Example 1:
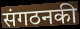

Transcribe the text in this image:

संगठनकी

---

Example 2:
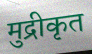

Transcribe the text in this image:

मुद्रीकृत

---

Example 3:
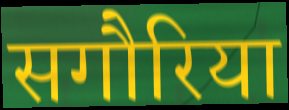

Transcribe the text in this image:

सगौरिया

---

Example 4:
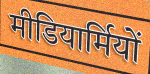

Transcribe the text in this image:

मीडियार्मियों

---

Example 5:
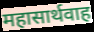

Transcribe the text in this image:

महासार्थवाह